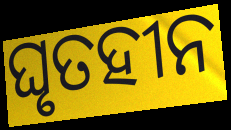
ଘୃତହୀନ